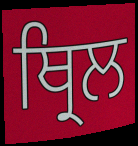
ਥ੍ਰਿਲ